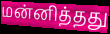
மன்னித்தது